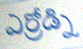
ఎర్రోడ్ని